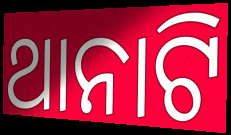
ଥାନାଟି